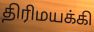
திரிமயக்கி